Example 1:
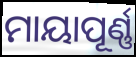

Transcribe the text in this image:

ମାୟାପୂର୍ଣ୍ଣ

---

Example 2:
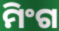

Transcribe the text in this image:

ମିଂଗ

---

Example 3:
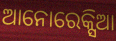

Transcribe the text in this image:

ଆନୋରେକ୍ସିଆ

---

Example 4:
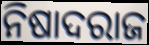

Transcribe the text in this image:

ନିଷାଦରାଜ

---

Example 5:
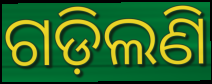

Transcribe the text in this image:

ଗଡ଼ିଲଣି